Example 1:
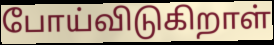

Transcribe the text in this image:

போய்விடுகிறாள்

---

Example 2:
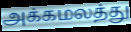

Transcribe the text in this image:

அக்கமலத்து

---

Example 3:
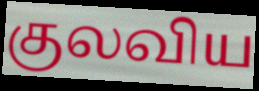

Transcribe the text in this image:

குலவிய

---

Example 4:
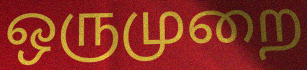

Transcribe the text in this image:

ஒருமுறை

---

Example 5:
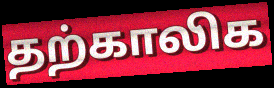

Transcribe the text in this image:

தற்காலிக